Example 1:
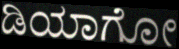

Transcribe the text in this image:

ಡಿಯಾಗೋ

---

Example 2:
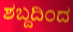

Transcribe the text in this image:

ಶಬ್ದದಿಂದ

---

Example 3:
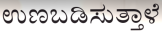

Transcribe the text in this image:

ಉಣಬಡಿಸುತ್ತಾಳೆ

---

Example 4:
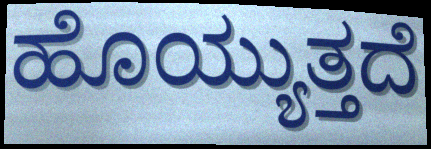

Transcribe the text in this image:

ಹೊಯ್ಯುತ್ತದೆ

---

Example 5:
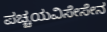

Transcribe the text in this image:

ಪಚ್ಚಯವಿಸೇಸೇನ